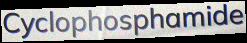
Cyclophosphamide